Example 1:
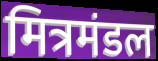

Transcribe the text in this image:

मित्रमंडल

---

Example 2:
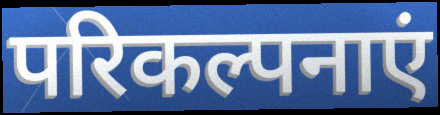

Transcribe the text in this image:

परिकल्पनाएं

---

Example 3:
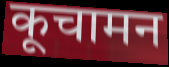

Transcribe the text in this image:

कूचामन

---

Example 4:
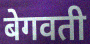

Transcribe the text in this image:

बेगवती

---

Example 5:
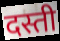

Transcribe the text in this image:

दस्ती